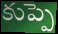
కుప్పె